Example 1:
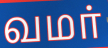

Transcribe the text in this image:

வமர்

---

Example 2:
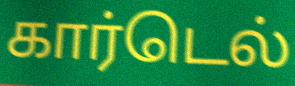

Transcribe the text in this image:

கார்டெல்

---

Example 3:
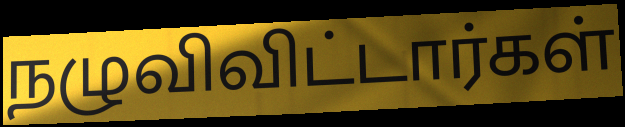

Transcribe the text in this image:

நழுவிவிட்டார்கள்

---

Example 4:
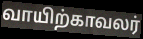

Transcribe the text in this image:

வாயிற்காவலர்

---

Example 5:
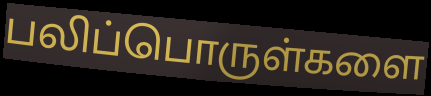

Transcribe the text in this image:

பலிப்பொருள்களை